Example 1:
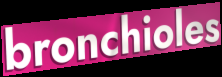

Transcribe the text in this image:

bronchioles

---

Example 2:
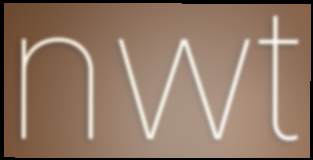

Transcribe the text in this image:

nwt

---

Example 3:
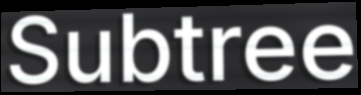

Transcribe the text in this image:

Subtree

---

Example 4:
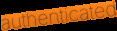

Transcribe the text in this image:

authenticated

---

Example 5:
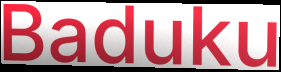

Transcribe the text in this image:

Baduku